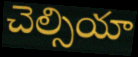
చెల్సియా